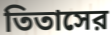
তিতাসের